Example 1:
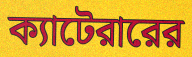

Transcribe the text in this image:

ক্যাটেরারের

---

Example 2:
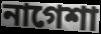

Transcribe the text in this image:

নাগেশা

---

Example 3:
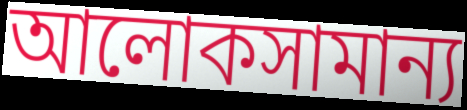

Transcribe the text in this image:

আলোকসামান্য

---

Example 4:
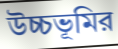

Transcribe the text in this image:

উচ্চভূমির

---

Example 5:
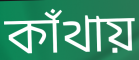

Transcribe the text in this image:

কাঁথায়